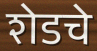
शेडचे